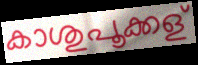
കാശുപൂക്കള്